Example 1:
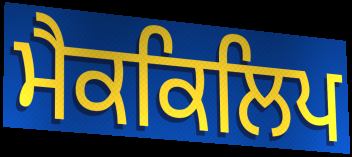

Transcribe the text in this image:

ਮੈਕਕਿਲਿਪ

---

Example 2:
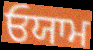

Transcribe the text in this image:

ਓਯਾਮ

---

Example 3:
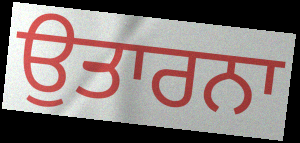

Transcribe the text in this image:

ਉਤਾਰਨਾ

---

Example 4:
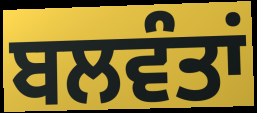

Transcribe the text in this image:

ਬਲਵੰਤਾਂ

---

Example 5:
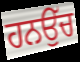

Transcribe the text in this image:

ਹਨਉੱਚ